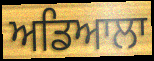
ਅਡਿਆਲਾ